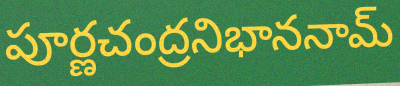
పూర్ణచంద్రనిభాననామ్